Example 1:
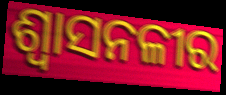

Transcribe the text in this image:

ଶ୍ୱାସନଳୀର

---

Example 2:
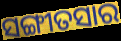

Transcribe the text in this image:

ସଙ୍ଗୀତସାର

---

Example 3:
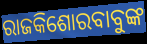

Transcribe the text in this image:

ରାଜକିଶୋରବାବୁଙ୍କ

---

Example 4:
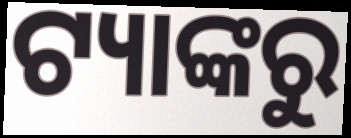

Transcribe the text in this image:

ଟ୍ୟାଙ୍କରୁ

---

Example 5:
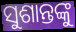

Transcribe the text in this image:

ସୁଶାନ୍ତଙ୍କୁ